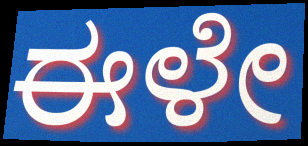
ಈಳೇ